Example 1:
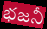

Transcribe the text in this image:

భజనీ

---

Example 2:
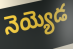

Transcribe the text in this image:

నెయ్యెడ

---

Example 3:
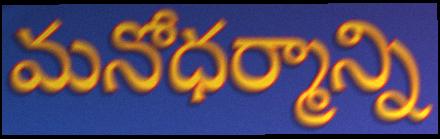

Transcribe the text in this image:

మనోధర్మాన్ని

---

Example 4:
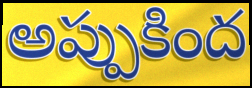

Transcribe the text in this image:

అప్పుకింద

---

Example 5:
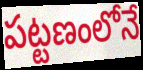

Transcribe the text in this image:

పట్టణంలోనే